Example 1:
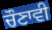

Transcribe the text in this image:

ਚੌਣਾਵੀ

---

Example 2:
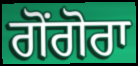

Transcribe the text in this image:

ਗੋਂਗੋਰਾ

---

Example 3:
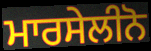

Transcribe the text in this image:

ਮਾਰਸੇਲੀਨੋ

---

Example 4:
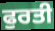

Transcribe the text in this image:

ਫੁਰਤੀ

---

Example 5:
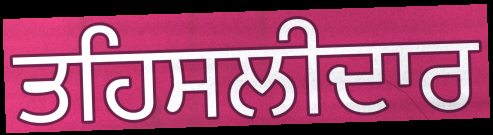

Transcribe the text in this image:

ਤਹਿਸਲੀਦਾਰ